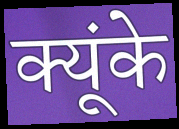
क्यूंके